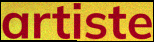
artiste